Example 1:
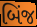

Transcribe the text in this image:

બિંજ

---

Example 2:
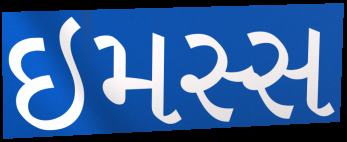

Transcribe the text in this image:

ઇમસ્સ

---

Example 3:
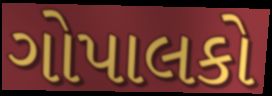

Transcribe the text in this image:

ગોપાલકો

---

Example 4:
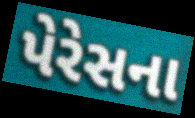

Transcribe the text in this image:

પેરેસના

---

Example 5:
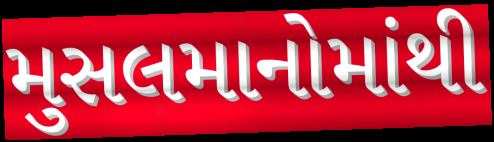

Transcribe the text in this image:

મુસલમાનોમાંથી